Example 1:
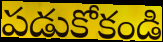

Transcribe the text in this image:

పడుకోకండి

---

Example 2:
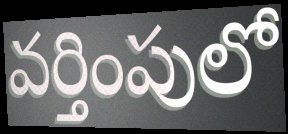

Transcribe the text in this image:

వర్తింపులో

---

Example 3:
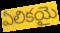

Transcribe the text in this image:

ఏలికయై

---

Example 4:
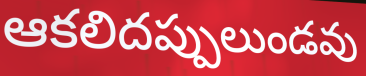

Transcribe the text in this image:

ఆకలిదప్పులుండవు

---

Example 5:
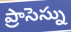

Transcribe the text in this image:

ప్రాసెస్ను